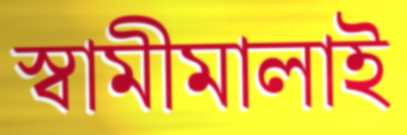
স্বামীমালাই